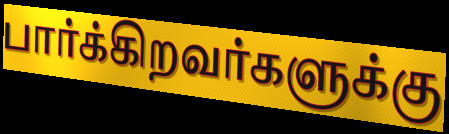
பார்க்கிறவர்களுக்கு